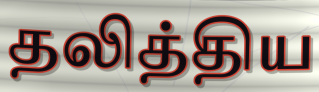
தலித்திய